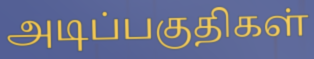
அடிப்பகுதிகள்